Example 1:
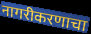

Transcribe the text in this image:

नागरीकरणाचा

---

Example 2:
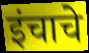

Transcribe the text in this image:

इंचाचे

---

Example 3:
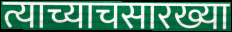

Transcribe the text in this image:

त्याच्याचसारख्या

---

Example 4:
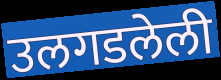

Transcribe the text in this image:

उलगडलेली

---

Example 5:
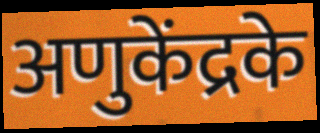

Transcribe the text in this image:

अणुकेंद्रके